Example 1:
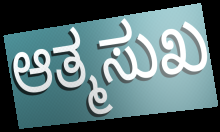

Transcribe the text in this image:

ಆತ್ಮಸುಖ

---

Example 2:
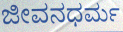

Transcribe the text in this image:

ಜೀವನಧರ್ಮ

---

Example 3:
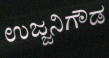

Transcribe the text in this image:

ಉಜ್ಜನಿಗೌಡ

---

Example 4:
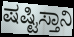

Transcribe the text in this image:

ಷಷ್ಟಿಸ್ತಾನಿ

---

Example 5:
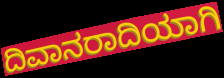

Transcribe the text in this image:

ದಿವಾನರಾದಿಯಾಗಿ